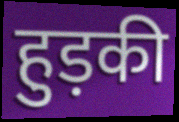
हुड़की